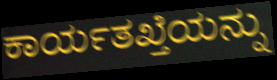
ಕಾರ್ಯತಖ್ತೆಯನ್ನು